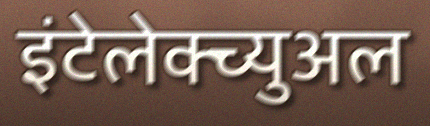
इंटेलेक्च्युअल